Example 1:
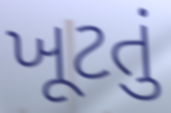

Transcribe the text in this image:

ખૂટતું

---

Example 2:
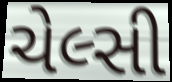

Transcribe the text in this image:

ચેલ્સી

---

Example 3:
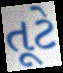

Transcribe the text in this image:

તૂટે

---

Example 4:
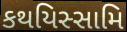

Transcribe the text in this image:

કથયિસ્સામિ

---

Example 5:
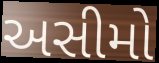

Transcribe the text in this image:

અસીમો